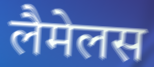
लैमेलस